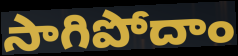
సాగిపోదాం